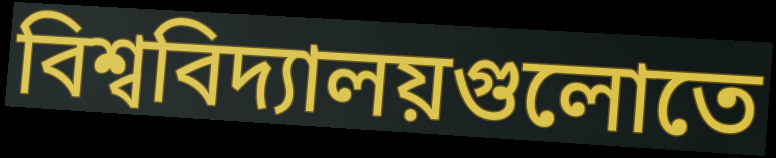
বিশ্ববিদ্যালয়গুলোতে